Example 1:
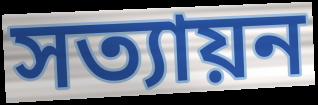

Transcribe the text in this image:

সত্যায়ন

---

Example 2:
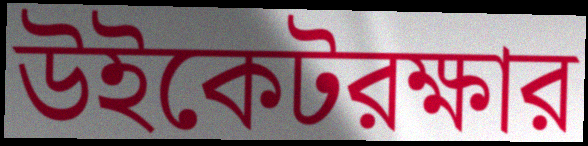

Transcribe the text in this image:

উইকেটরক্ষার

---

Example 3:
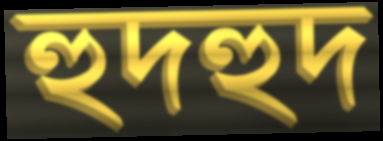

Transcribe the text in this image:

হুদহুদ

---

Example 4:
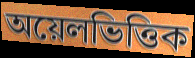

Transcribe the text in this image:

অয়েলভিত্তিক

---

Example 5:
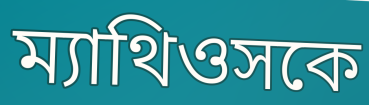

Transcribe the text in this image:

ম্যাথিওসকে